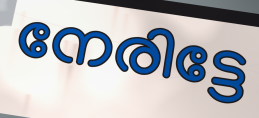
നേരിട്ടേ